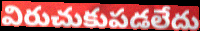
విరుచుకుపడలేదు